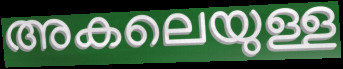
അകലെയുള്ള